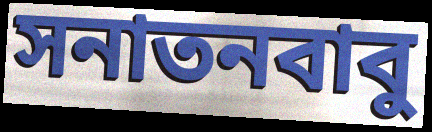
সনাতনবাবু